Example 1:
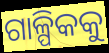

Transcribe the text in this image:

ଗାଳ୍ପିକକୁ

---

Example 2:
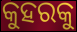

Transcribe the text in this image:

କୁହରକୁ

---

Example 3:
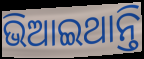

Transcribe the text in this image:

ଭିଆଇଥାନ୍ତି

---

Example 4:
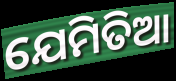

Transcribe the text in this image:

ଯେମିତିଆ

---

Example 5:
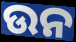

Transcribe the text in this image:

ଉନ